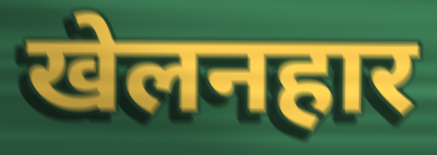
खेलनहार